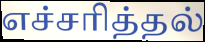
எச்சரித்தல்